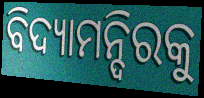
ବିଦ୍ୟାମନ୍ଦିରକୁ